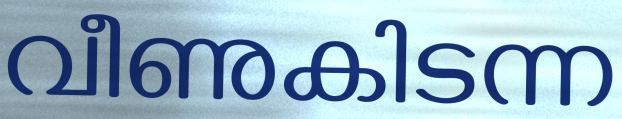
വീണുകിടന്ന